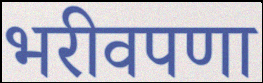
भरीवपणा